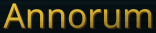
Annorum